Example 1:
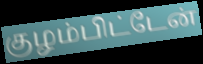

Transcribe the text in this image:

குழம்பிட்டேன்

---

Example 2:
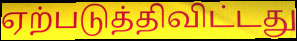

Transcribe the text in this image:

ஏற்படுத்திவிட்டது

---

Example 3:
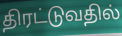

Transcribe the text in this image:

திரட்டுவதில்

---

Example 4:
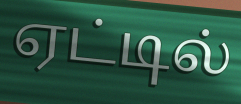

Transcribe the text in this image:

ஏட்டில்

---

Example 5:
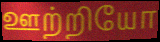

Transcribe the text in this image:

ஊற்றியோ